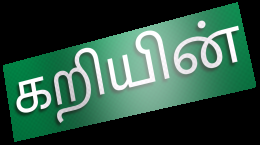
கறியின்